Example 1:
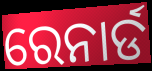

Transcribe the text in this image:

ରେନାର୍ଡ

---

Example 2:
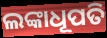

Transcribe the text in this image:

ଲଙ୍କାଧୂପତି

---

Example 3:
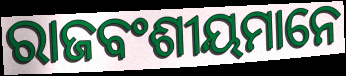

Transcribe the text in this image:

ରାଜବଂଶୀୟମାନେ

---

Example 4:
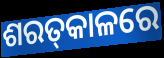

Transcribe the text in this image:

ଶରତ୍‌କାଳରେ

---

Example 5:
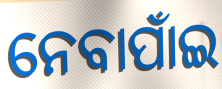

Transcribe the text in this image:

ନେବାପାଁଇ